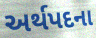
અર્થપદના